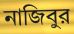
নাজিবুর